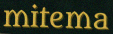
mitema